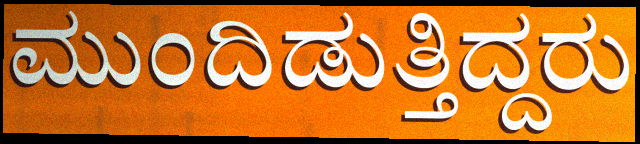
ಮುಂದಿಡುತ್ತಿದ್ದರು